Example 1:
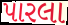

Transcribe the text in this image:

પારલા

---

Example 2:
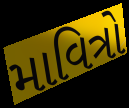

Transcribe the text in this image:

માવિત્રો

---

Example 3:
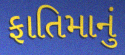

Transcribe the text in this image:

ફાતિમાનું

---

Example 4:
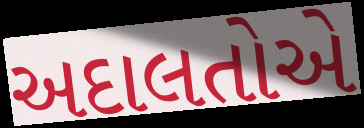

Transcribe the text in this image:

અદાલતોએ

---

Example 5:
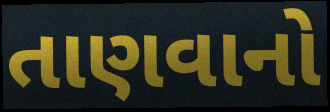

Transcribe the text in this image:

તાણવાનો